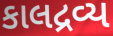
કાલદ્રવ્ય